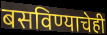
बसविण्याचेही